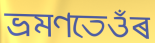
ভ্ৰমণতেওঁৰ